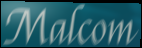
Malcom